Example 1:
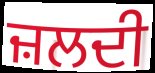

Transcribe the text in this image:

ਜ਼ਲਦੀ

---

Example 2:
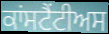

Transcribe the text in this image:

ਕਾਂਸਟੈਂਟੀਅਸ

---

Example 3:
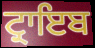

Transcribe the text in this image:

ਟ੍ਰਾਇਬ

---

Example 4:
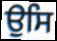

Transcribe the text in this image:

ਉਸਿ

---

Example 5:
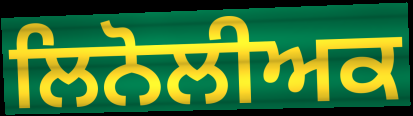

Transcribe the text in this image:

ਲਿਨੋਲੀਅਕ